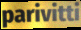
parivitti